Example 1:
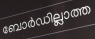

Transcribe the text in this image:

ബോർഡില്ലാത്ത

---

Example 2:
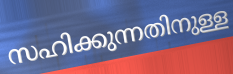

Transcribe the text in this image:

സഹിക്കുന്നതിനുള്ള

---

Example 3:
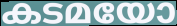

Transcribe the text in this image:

കടമയോ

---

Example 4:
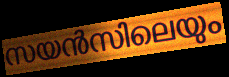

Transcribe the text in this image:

സയൻസിലെയും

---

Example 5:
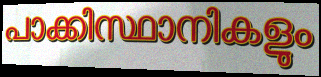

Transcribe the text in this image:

പാക്കിസ്ഥാനികളും